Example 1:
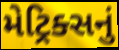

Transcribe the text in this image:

મેટ્રિક્સનું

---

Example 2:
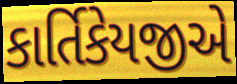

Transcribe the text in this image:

કાર્તિકેયજીએ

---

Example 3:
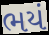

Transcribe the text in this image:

ભયં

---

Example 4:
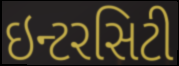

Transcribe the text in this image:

ઇન્ટરસિટી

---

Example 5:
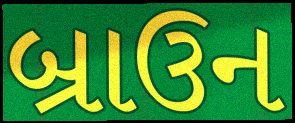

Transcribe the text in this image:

બ્રાઉન